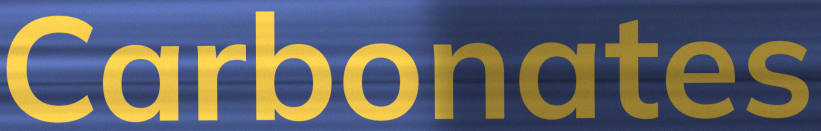
Carbonates